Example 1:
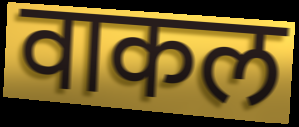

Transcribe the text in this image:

वाकल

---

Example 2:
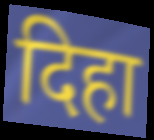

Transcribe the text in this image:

दिहा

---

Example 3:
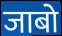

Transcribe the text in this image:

जाबो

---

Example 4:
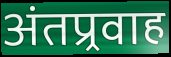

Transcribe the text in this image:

अंतप्र्रवाह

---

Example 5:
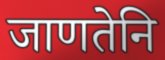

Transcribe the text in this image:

जाणतेनि